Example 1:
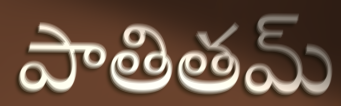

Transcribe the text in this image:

పాతితమ్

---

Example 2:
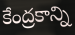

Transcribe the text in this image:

కేంద్రకాన్ని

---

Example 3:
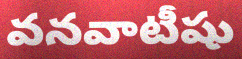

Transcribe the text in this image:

వనవాటీషు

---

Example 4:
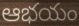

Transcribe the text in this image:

ఆభయం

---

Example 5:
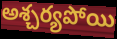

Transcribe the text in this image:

అశ్చర్యపోయి